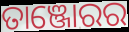
ତାଞ୍ଜୋରର